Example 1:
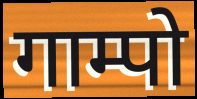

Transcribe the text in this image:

गाम्पो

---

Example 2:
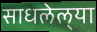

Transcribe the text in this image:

साधलेल्या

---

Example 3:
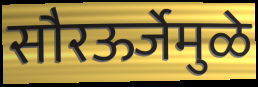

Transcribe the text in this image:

सौरऊर्जेमुळे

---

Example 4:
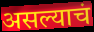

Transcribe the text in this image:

असल्याचं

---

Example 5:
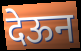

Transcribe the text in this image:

देऊन